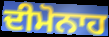
ਦੀਮੋਨਾਹ